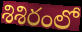
శిశిరంలో